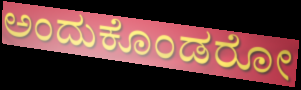
ಅಂದುಕೊಂಡರೋ